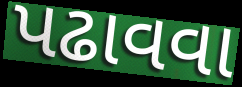
પઢાવવા